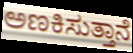
ಅಣಕಿಸುತ್ತಾನೆ